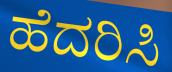
ಹೆದರಿಸಿ